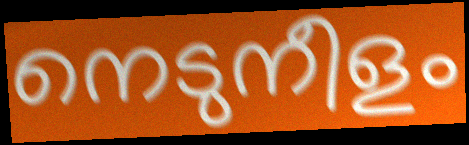
നെടുനീളം